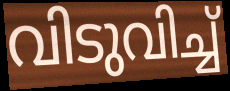
വിടുവിച്ച്